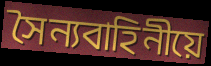
সৈন্যবাহিনীয়ে